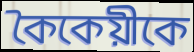
কৈকেয়ীকে